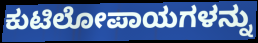
ಕುಟಿಲೋಪಾಯಗಳನ್ನು